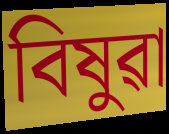
বিষুৱা